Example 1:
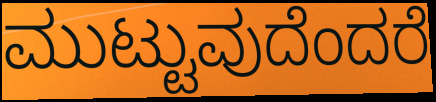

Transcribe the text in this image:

ಮುಟ್ಟುವುದೆಂದರೆ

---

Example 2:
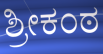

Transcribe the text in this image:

ಶ್ರೀಕಂಠ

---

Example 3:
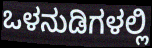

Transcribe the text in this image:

ಒಳನುಡಿಗಳಲ್ಲಿ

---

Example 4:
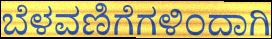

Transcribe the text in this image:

ಬೆಳವಣಿಗೆಗಳಿಂದಾಗಿ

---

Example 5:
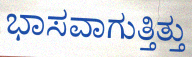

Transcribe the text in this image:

ಭಾಸವಾಗುತ್ತಿತ್ತು